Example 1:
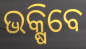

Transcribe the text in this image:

ଭକ୍ଷିବେ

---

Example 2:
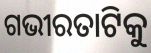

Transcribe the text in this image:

ଗଭୀରତାଟିକୁ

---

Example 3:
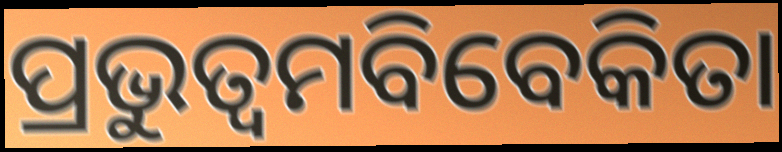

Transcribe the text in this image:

ପ୍ରଭୁତ୍ୱମବିବେକିତା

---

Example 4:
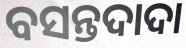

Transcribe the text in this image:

ବସନ୍ତଦାଦା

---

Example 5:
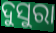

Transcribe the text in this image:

ଦୁସୁରା